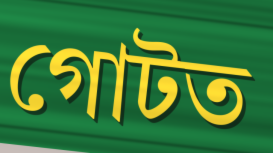
গোটত